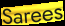
Sarees